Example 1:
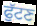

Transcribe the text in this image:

ਫੁੱਟਣ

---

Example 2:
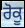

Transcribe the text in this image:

ਰੋਕੂ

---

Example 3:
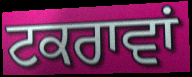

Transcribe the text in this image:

ਟਕਰਾਵਾਂ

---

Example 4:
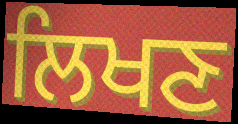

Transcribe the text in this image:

ਲਿਖਣ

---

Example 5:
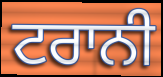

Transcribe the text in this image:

ਟਰਾਨੀ